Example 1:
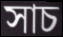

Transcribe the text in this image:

সাচ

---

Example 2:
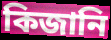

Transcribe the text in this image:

কিজানি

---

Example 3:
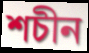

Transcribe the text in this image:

শচীন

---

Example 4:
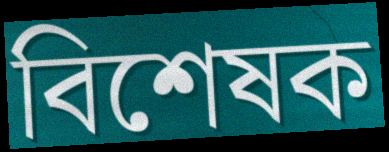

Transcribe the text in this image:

বিশেষক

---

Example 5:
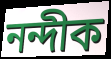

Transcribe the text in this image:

নন্দীক